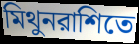
মিথুনরাশিতে